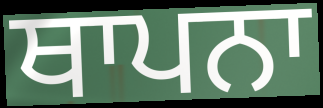
ਥਾਪਨਾ